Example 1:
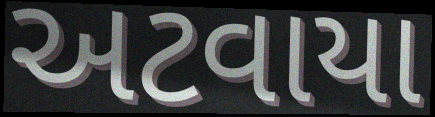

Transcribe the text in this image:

અટવાયા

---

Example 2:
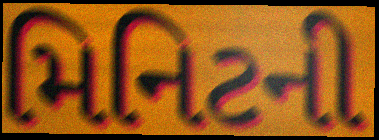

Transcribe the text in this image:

મિનિટની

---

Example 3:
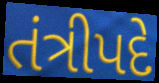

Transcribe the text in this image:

તંત્રીપદે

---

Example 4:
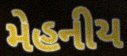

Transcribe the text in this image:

મેહનીય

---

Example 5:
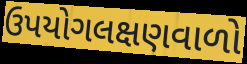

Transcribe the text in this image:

ઉપયોગલક્ષણવાળો